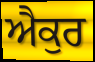
ਐਕੁਰ